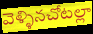
వెళ్ళినచోటల్లా